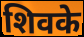
शिवके